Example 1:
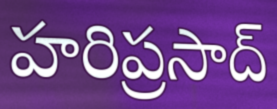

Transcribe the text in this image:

హరిప్రసాద్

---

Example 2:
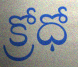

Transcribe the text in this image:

క్రోధో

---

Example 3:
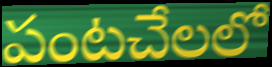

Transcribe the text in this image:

పంటచేలలో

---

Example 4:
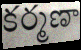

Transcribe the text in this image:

కర్మణా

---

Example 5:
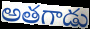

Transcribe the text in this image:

అతగాడు